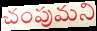
చంపుమని